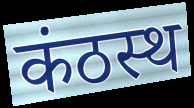
कंठस्थ